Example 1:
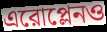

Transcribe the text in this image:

এরোপ্লেনও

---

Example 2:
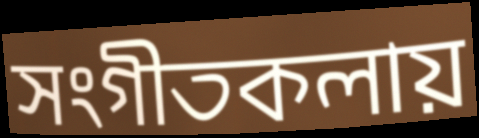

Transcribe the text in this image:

সংগীতকলায়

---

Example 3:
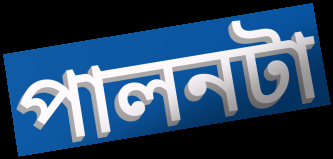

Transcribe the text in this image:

পালনটা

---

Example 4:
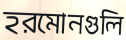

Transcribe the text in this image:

হরমোনগুলি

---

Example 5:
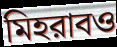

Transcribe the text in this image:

মিহরাবও